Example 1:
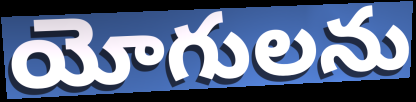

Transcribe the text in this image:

యోగులను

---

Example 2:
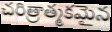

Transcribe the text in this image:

చరిత్రాత్మకమైన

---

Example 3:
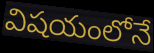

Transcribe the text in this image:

విషయంలోనే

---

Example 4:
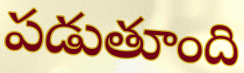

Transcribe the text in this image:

పడుతూంది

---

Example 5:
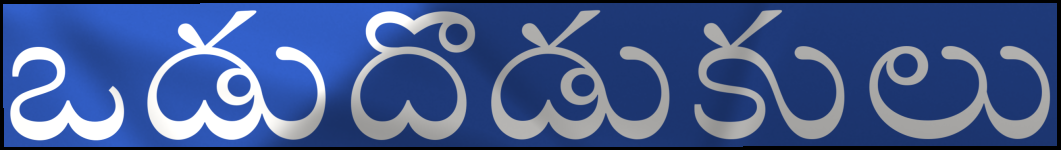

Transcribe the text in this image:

ఒడుదొడుకులు